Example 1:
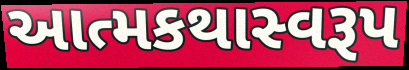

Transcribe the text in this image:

આત્મકથાસ્વરૂપ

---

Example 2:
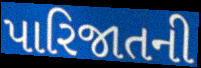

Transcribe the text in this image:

પારિજાતની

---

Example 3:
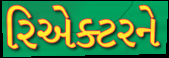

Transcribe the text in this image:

રિએક્ટરને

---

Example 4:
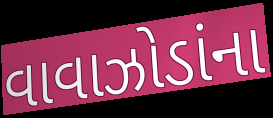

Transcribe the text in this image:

વાવાઝોડાંના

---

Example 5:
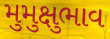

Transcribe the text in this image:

મુમુક્ષુભાવ